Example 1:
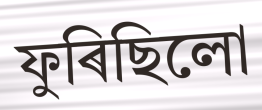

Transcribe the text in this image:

ফুৰিছিলো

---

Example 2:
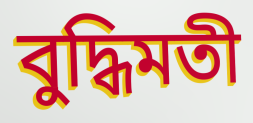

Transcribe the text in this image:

বুদ্ধিমতী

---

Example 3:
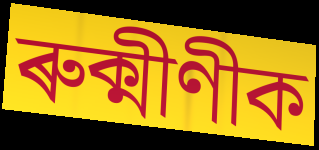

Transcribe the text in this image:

ৰুক্মীণীক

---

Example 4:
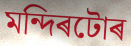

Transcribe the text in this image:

মন্দিৰটোৰ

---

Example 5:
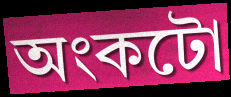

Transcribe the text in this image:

অংকটো